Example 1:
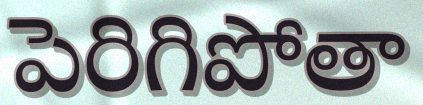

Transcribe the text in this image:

పెరిగిపోతా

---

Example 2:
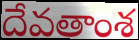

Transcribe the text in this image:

దేవతాంశ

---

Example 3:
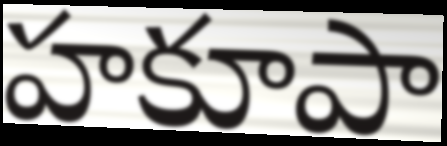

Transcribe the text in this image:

హకూపా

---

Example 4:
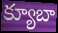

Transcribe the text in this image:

క్యూబా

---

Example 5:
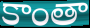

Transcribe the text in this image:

కాంతా